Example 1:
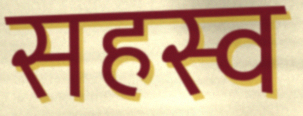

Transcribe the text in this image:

सहस्व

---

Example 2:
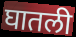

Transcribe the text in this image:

घातली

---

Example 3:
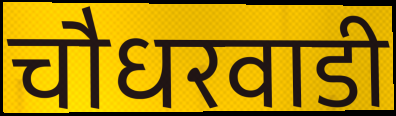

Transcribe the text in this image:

चौधरवाडी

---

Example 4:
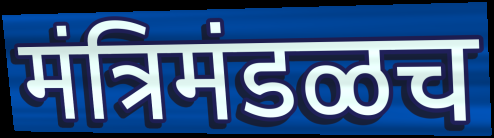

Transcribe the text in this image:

मंत्रिमंडळच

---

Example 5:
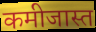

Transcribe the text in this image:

कमीजास्त